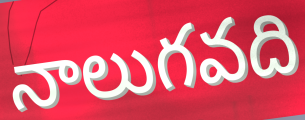
నాలుగవది